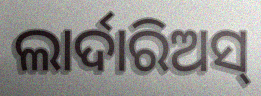
ଲାର୍ଦାରିଅସ୍